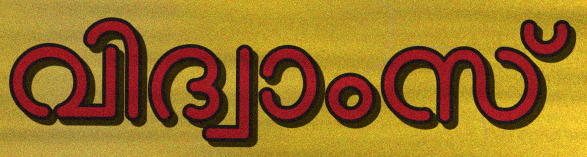
വിദ്വാംസ്